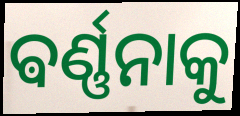
ଵର୍ଣ୍ଣନାକୁ